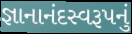
જ્ઞાનાનંદસ્વરૂપનું